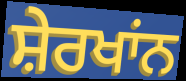
ਸ਼ੇਰਖਾਂਨ